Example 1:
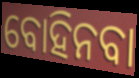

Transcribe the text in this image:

ବୋହିନବା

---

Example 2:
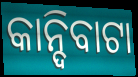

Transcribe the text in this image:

କାନ୍ଦିବାଟା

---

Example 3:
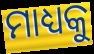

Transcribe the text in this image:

ମାଧ୍ୟକୁ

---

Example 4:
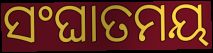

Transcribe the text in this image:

ସଂଘାତମୟ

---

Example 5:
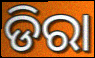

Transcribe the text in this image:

ଡିରା